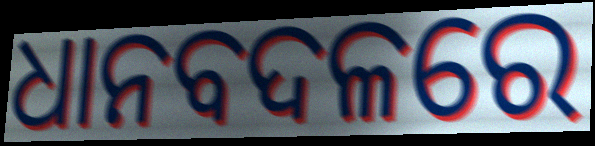
ଧାନବଦଳରେ